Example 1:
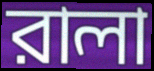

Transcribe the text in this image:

রালা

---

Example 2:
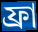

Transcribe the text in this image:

ফ্রা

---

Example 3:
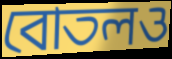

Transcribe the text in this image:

বোতলও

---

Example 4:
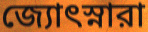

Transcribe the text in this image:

জ্যোৎস্নারা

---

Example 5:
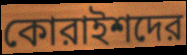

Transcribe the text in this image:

কোরাইশদের